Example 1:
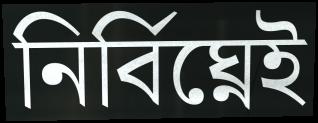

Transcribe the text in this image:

নির্বিঘ্নেই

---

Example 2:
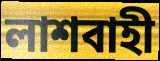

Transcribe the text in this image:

লাশবাহী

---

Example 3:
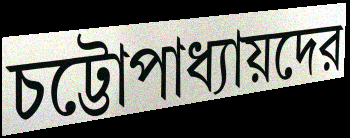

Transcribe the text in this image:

চট্টোপাধ্যায়দের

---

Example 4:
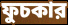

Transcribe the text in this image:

ফুচকার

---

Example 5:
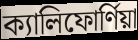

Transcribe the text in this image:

ক্যালিফোর্ণিয়া